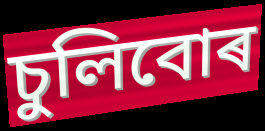
চুলিবোৰ